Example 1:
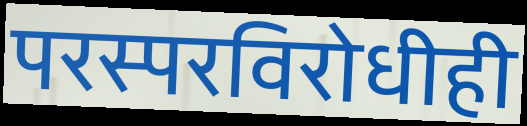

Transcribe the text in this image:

परस्परविरोधीही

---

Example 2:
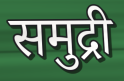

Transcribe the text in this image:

समुद्री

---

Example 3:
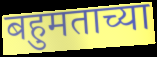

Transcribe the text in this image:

बहुमताच्या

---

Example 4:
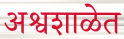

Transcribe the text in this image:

अश्वशाळेत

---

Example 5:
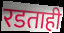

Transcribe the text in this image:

रडताही